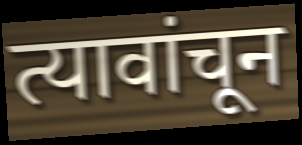
त्यावांचून